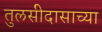
तुलसीदासाच्या